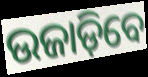
ଉଜାଡ଼ିବେ